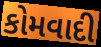
કોમવાદી